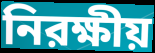
নিরক্ষীয়